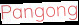
Pangong